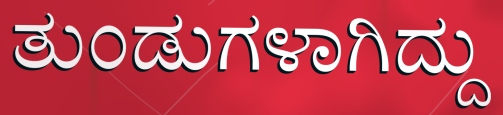
ತುಂಡುಗಳಾಗಿದ್ದು